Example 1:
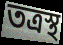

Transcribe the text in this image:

তত্রস্থ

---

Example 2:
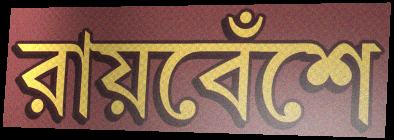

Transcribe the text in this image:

রায়বেঁশে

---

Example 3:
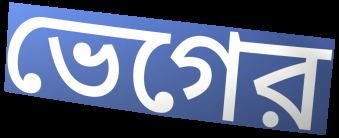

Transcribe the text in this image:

ভেগের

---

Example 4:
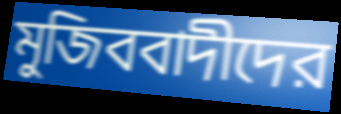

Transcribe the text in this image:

মুজিববাদীদের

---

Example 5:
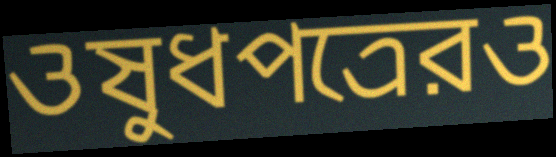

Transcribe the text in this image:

ওষুধপত্রেরও